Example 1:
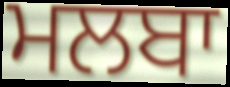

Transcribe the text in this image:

ਮਲਬਾ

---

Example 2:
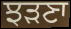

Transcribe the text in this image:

ਝੜਣਾ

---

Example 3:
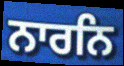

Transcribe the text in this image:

ਨਾਰਨਿ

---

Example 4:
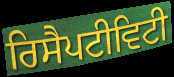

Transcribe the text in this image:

ਰਿਸੈਪਟੀਵਿਟੀ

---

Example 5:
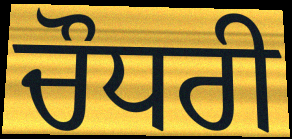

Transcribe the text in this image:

ਚੌਧਰੀ